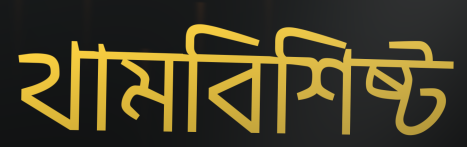
থামবিশিষ্ট